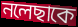
নলেছাকে